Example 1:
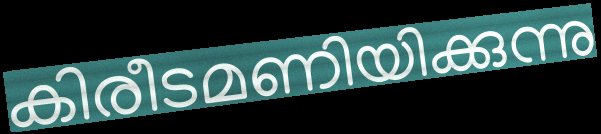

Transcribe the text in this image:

കിരീടമണിയിക്കുന്നു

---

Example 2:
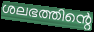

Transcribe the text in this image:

ശലഭത്തിന്റെ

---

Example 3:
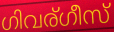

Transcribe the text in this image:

ഗിവര്ഗീസ്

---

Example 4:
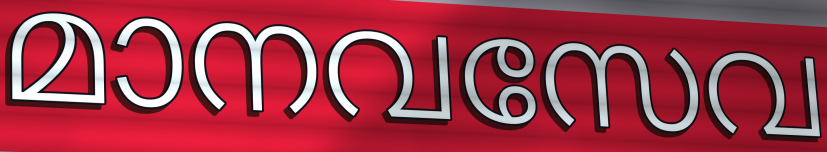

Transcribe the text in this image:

മാനവസേവ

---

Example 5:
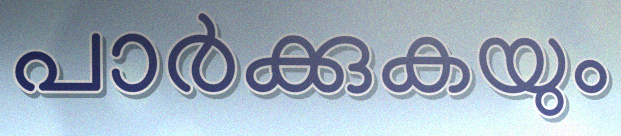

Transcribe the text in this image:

പാർക്കുകയും